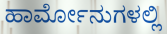
ಹಾರ್ಮೋನುಗಳಲ್ಲಿ